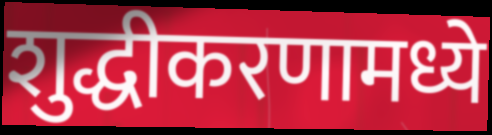
शुद्धीकरणामध्ये